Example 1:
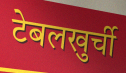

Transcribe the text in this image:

टेबलखुर्ची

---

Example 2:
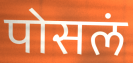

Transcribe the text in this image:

पोसलं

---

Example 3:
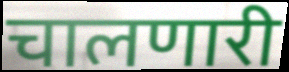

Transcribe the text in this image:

चालणारी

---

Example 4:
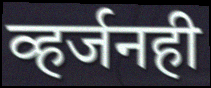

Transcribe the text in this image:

व्हर्जनही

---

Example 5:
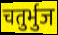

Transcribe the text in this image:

चतुर्भुज